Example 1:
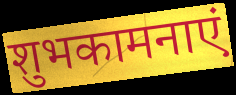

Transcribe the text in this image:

शुभकामनाएं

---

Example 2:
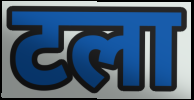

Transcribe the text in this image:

टला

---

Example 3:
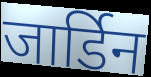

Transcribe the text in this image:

जार्डिन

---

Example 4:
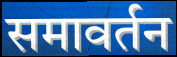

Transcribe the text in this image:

समावर्तन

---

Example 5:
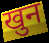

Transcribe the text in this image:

खुन